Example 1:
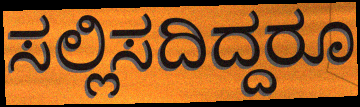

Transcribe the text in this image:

ಸಲ್ಲಿಸದಿದ್ದರೂ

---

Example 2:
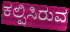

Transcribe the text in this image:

ಕಲ್ಪಿಸಿರುವ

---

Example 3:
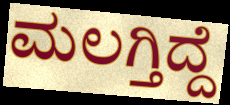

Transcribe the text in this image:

ಮಲಗ್ತಿದ್ದೆ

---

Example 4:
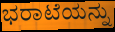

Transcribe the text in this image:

ಭರಾಟೆಯನ್ನು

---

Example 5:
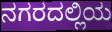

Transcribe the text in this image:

ನಗರದಲ್ಲಿಯ